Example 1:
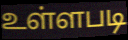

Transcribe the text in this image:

உள்ளபடி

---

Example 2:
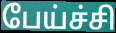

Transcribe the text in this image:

பேய்ச்சி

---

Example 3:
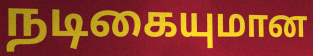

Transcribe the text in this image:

நடிகையுமான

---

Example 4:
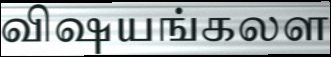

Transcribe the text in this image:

விஷயங்கலள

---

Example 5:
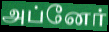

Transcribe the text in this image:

அப்னேர்